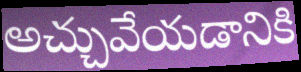
అచ్చువేయడానికి